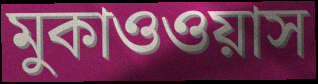
মুকাওওয়াস